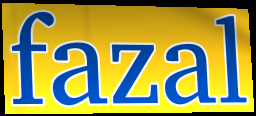
fazal